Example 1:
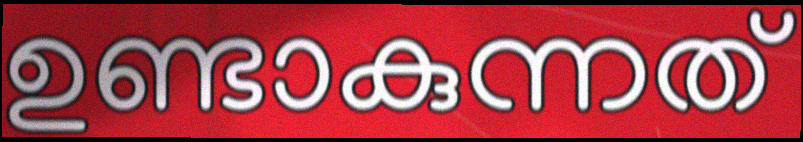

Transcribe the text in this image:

ഉണ്ടാകുന്നത്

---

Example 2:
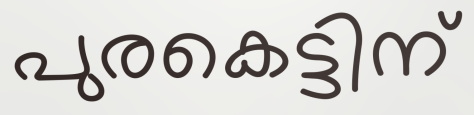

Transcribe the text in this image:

പുരകെട്ടിന്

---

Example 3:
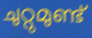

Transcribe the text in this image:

ചുറ്റുമുണ്ട്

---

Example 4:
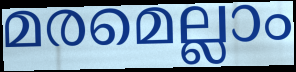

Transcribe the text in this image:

മരമെല്ലാം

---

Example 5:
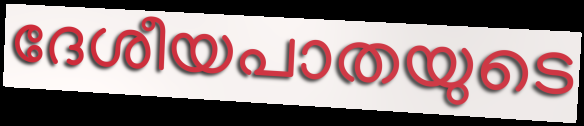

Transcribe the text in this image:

ദേശീയപാതയുടെ